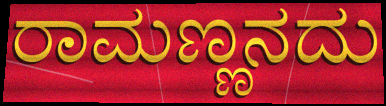
ರಾಮಣ್ಣನದು